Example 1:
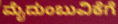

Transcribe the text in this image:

ಮೈದುಂಬುವಿಕೆಗೆ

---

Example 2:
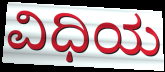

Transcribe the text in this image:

ವಿಧಿಯ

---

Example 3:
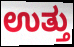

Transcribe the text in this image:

ಉತ್ತು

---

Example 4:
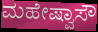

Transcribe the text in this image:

ಮಹೇಷ್ವಾಸೌ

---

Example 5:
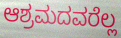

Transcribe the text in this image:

ಆಶ್ರಮದವರೆಲ್ಲ